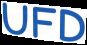
UFD